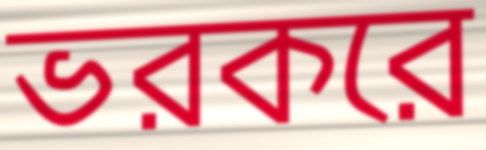
ভরকরে